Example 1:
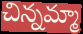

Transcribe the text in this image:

చిన్నమ్మా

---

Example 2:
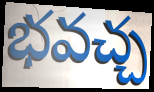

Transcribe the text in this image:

భవచ్చ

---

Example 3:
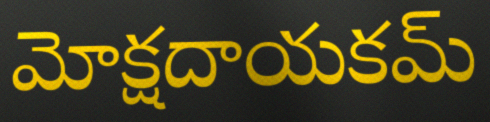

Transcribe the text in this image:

మోక్షదాయకమ్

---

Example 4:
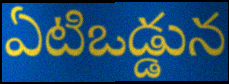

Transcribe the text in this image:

ఏటిఒడ్డున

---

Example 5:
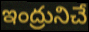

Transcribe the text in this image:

ఇంద్రునిచే